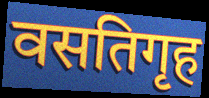
वसतिगृह